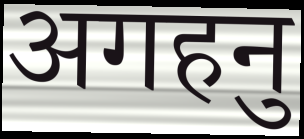
अगहनु